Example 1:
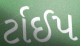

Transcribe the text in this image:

ર્ટાઈપ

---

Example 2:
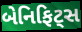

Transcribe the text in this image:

બેનિફિટ્સ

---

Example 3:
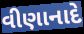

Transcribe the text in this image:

વીણાનાદે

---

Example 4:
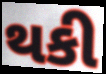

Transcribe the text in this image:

થકી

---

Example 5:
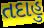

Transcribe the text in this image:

તદાહુ